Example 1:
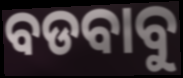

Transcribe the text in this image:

ବଡବାବୁ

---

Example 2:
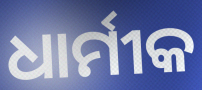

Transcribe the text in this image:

ଧାର୍ମୀକ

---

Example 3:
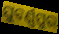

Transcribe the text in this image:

ସୁବର୍ଣ୍ଣପୁର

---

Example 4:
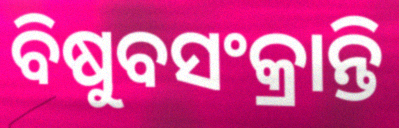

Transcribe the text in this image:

ବିଷୁବସଂକ୍ରାନ୍ତି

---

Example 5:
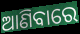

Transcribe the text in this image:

ଆଣିବାରେ